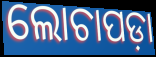
ଲୋଚାପଡ଼ା